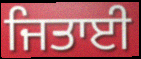
ਜਿਤਾਈ